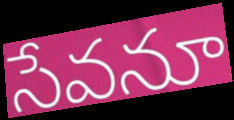
సేవనూ